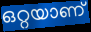
ഒറ്റയാണ്